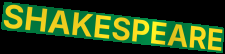
SHAKESPEARE